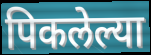
पिकलेल्या